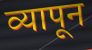
व्यापून